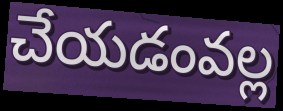
చేయడంవల్ల